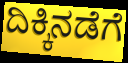
ದಿಕ್ಕಿನಡೆಗೆ